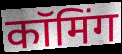
कॉमिंग